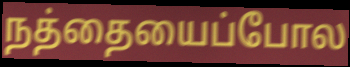
நத்தையைப்போல